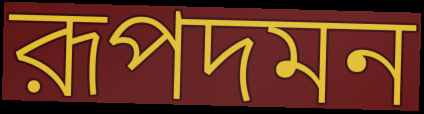
রূপদমন